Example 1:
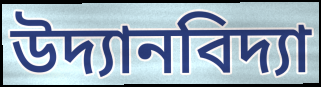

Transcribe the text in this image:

উদ্যানবিদ্যা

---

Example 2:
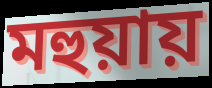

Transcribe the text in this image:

মহুয়ায়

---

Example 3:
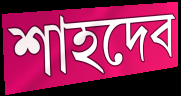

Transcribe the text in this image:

শাহদেব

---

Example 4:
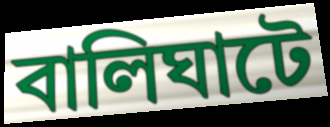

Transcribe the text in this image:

বালিঘাটে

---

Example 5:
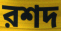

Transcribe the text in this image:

রশদ